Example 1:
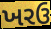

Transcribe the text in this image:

ખરઉ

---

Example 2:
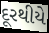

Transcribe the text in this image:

દૂરથીયે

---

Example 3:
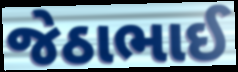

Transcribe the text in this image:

જેઠાભાઈ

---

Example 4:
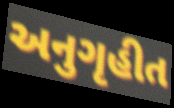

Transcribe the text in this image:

અનુગૃહીત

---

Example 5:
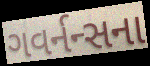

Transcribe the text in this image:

ગવર્નન્સના